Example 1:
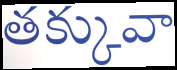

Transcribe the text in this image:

తక్కువా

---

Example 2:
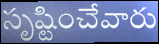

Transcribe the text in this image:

సృష్టించేవారు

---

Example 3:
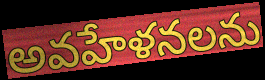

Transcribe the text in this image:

అవహేళనలను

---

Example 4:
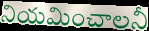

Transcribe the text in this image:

నియమించాలనీ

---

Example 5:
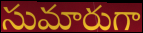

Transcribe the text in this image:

సుమారుగా